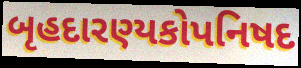
બૃહદારણ્યકોપનિષદ